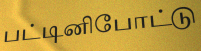
பட்டினிபோட்டு